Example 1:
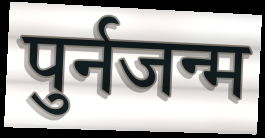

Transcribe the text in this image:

पुर्नजन्म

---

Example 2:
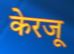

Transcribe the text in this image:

केरजू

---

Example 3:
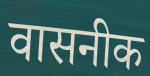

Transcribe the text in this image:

वासनीक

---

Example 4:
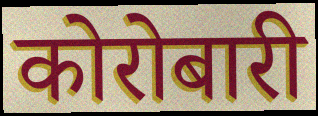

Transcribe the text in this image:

कोरोबारी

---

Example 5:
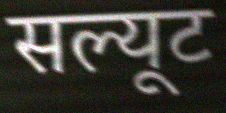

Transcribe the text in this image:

सल्यूट